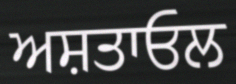
ਅਸ਼ਤਾਓਲ